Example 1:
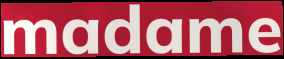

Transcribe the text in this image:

madame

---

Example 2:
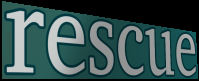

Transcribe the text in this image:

rescue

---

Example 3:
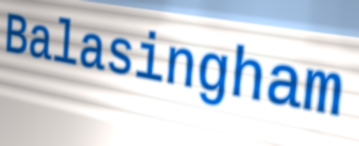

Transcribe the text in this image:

Balasingham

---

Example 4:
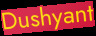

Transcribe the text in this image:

Dushyant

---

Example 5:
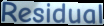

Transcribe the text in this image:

Residual